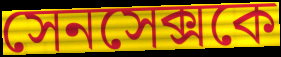
সেনসেক্সকে